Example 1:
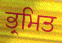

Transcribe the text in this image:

ਭ੍ਰਮਿਤ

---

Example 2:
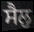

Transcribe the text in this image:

ਸੈਲੁ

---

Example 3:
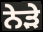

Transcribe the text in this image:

ਨੇਡ਼ੇ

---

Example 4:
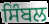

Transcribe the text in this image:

ਸਿੰਬਲ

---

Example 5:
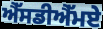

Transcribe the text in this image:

ਐੱਸਡੀਐੱਮਏ